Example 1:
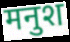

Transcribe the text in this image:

मनुश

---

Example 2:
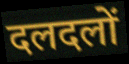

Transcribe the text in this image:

दलदलों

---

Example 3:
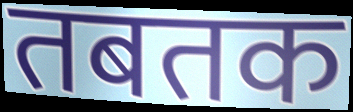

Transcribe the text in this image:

तबतक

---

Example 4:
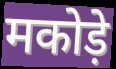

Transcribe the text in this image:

मकोड़े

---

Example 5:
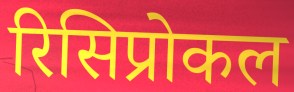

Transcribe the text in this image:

रिसिप्रोकल